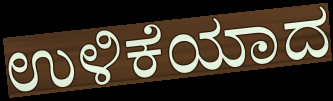
ಉಳಿಕೆಯಾದ